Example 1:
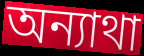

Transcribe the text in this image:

অন্যাথা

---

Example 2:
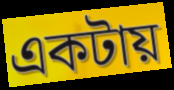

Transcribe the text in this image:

একটায়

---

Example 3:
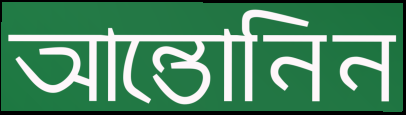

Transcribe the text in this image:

আন্তোনিন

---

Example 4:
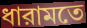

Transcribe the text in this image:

ধারামতে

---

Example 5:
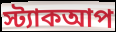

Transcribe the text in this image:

স্ট্যাকআপ